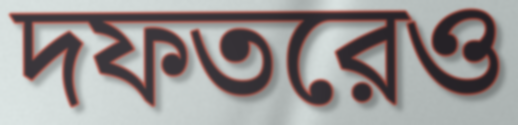
দফতরেও